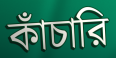
কাঁচারি